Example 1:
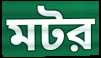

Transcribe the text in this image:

মটর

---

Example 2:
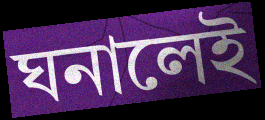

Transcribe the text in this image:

ঘনালেই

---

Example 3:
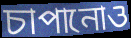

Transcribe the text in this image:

চাপানোও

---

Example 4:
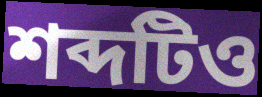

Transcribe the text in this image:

শব্দটিও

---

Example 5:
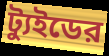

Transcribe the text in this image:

ট্যুইডের